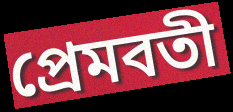
প্রেমবতী